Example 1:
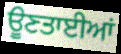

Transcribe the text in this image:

ਊਣਤਾਈਆਂ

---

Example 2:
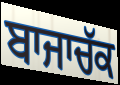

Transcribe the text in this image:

ਬਾਜਾਚੱਕ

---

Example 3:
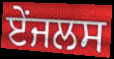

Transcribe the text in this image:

ਏਂਜਲਸ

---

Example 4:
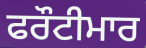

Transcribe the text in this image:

ਫਰੌਟੀਮਾਰ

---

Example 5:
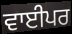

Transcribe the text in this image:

ਵਾਈਪਰ